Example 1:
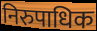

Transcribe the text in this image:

निरुपाधिक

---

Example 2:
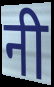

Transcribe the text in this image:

नी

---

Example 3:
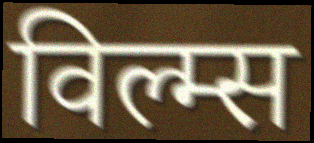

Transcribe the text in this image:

विल्म्स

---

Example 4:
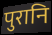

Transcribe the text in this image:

पुरानि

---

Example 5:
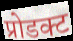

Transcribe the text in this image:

प्रोडक्ट